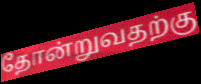
தோன்றுவதற்கு